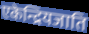
एकेन्द्रियजाति